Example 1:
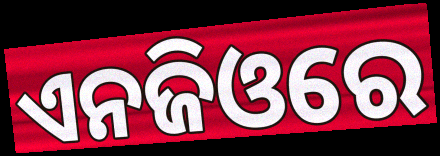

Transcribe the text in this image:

ଏନଜିଓରେ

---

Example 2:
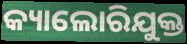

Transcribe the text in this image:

କ୍ୟାଲୋରିଯୁକ୍ତ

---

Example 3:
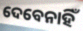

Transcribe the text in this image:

ଦେବେନାହିଁ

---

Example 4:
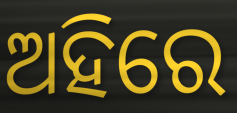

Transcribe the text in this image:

ଅହିରେ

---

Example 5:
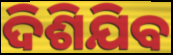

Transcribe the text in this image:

ଦିଶିଯିବ